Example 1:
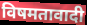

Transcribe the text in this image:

विषमतावादी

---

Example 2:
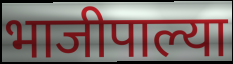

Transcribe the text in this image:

भाजीपाल्या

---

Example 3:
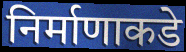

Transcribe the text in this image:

निर्माणाकडे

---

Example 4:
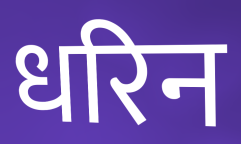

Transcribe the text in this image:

धरिन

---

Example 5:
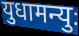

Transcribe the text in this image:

युधामन्युः